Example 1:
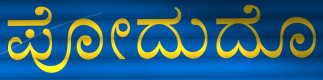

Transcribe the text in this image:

ಪೋದುದೊ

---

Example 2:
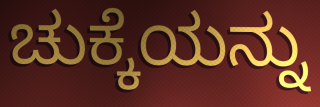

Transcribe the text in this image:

ಚುಕ್ಕೆಯನ್ನು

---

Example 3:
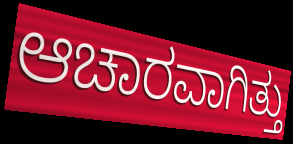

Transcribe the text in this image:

ಆಚಾರವಾಗಿತ್ತು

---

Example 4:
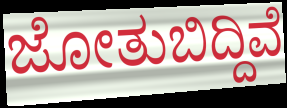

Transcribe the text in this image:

ಜೋತುಬಿದ್ದಿವೆ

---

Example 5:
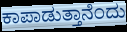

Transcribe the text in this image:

ಕಾಪಾಡುತ್ತಾನೆಂದು